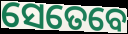
ସେତେବେ